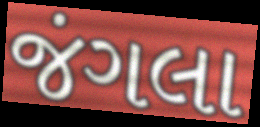
જંગલા